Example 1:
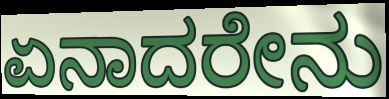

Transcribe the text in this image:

ಏನಾದರೇನು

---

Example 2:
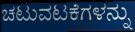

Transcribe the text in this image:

ಚಟುವಟಕೆಗಳನ್ನು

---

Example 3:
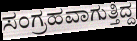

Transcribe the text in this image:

ಸಂಗ್ರಹವಾಗುತ್ತಿದ್ದ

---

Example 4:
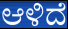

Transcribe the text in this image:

ಆಳಿದೆ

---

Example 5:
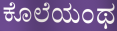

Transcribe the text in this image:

ಕೊಲೆಯಂಥ